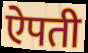
ऐपती